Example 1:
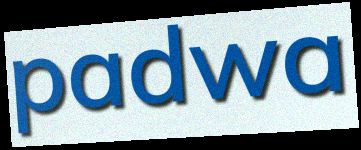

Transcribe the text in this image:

padwa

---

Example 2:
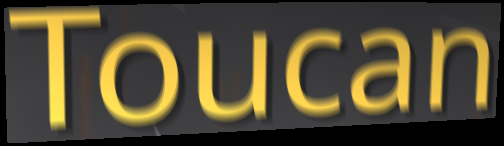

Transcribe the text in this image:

Toucan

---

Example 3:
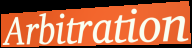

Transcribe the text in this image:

Arbitration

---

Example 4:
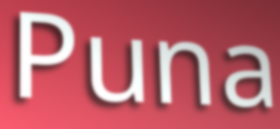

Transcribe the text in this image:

Puna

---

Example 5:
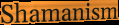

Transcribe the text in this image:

Shamanism